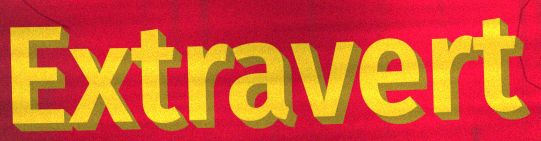
Extravert